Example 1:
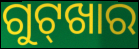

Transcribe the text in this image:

ଗୁଟ୍‌ଖାର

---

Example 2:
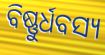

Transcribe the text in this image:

ବିଷ୍ଣୁର୍ଧବସ୍ୟ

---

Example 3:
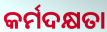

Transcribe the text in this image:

କର୍ମଦକ୍ଷତା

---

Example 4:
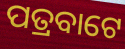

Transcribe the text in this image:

ପତ୍ରବାଟେ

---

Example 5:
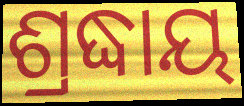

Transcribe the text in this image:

ଶ୍ରଦ୍ଧାୟ